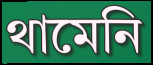
থামেনি